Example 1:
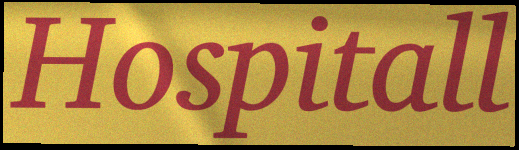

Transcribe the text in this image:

Hospitall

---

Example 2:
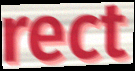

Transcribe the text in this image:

rect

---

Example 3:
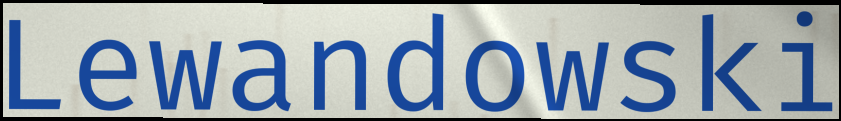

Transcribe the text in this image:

Lewandowski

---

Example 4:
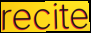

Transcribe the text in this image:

recite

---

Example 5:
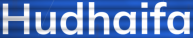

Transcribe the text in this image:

Hudhaifa